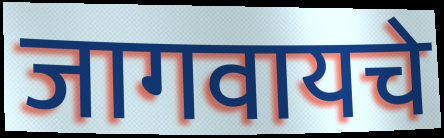
जागवायचे